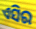
ଏସିର